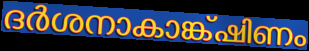
ദർശനാകാങ്ക്ഷിണം